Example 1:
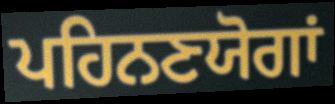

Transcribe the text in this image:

ਪਹਿਨਣਯੋਗਾਂ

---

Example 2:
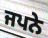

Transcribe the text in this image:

ਜਪਨੇ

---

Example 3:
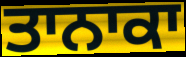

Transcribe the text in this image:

ਤਾਨਾਕਾ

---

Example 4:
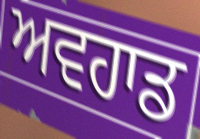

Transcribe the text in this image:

ਅਵਹਾਡ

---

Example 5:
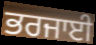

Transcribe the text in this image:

ਭਰਜਾਈ